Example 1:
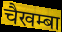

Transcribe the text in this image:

चैखम्बा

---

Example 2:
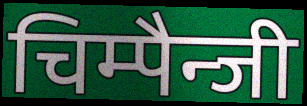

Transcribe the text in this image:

चिम्पैन्जी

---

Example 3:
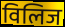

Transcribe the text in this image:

विलिज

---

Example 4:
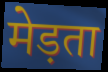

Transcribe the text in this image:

मेड़ता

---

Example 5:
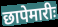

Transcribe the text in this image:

छापेमारीः